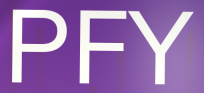
PFY